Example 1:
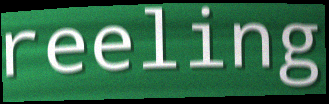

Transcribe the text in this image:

reeling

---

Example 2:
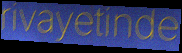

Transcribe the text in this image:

rivayetinde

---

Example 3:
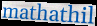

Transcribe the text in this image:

mathathil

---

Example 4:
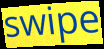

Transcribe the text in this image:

swipe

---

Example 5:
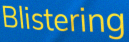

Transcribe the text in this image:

Blistering